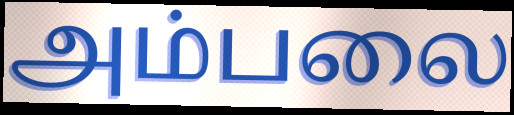
அம்பலை